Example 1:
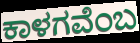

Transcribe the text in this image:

ಕಾಳಗವೆಂಬ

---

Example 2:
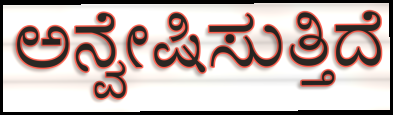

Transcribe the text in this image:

ಅನ್ವೇಷಿಸುತ್ತಿದೆ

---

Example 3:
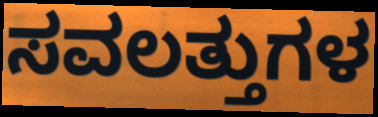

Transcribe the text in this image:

ಸವಲತ್ತುಗಳ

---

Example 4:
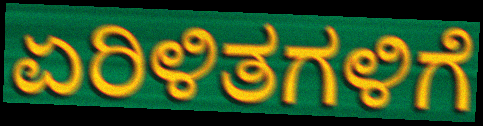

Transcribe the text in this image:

ಏರಿಳಿತಗಳಿಗೆ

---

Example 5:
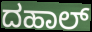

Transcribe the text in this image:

ದಹಾಲ್